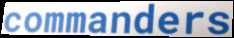
commanders